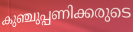
കുഞ്ചുപ്പണിക്കരുടെ